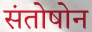
संतोषोन